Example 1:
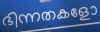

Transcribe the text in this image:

ഭിന്നതകളോ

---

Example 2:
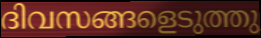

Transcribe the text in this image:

ദിവസങ്ങളെടുത്തു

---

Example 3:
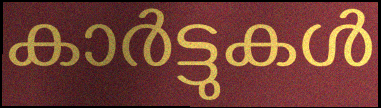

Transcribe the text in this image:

കാർട്ടുകൾ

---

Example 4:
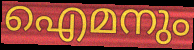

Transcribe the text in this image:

ഐമനും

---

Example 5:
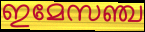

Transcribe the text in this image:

ഇമേസഞ്ച